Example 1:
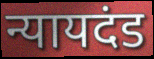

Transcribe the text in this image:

न्यायदंड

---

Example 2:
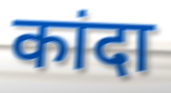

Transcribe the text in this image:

कांदा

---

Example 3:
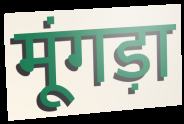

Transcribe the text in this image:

मूंगड़ा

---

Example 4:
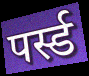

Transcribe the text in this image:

पर्स्ड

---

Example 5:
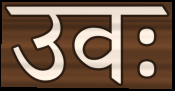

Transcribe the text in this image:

उवः